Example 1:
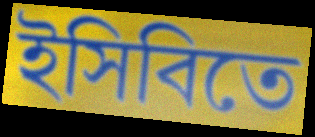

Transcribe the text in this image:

ইসিবিতে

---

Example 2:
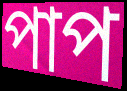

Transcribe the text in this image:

পাপ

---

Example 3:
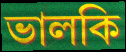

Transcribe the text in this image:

ভালকি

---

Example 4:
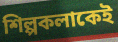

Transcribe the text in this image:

শিল্পকলাকেই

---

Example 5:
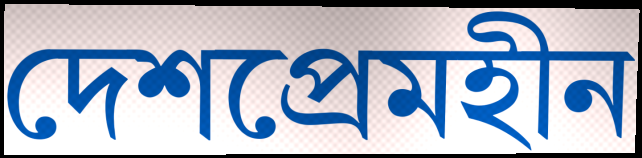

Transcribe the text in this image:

দেশপ্রেমহীন